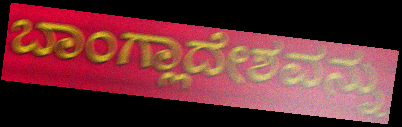
ಬಾಂಗ್ಲಾದೇಶವನ್ನು